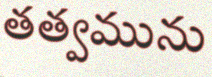
తత్వమును